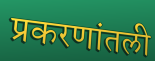
प्रकरणांतली